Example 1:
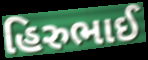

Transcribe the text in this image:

હિરુભાઈ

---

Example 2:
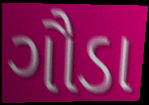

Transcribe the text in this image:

ગૌડા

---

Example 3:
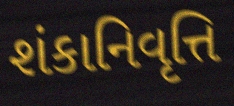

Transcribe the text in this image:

શંકાનિવૃત્તિ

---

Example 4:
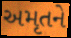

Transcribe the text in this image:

અમૃતને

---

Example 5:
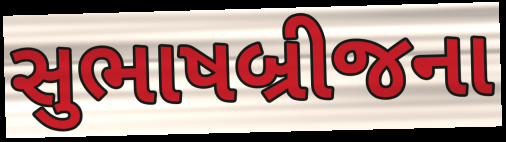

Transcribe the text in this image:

સુભાષબ્રીજના